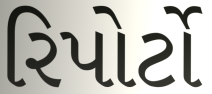
રિપોર્ટો